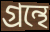
গ্ৰন্থে